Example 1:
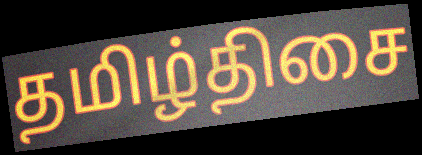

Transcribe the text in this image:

தமிழ்திசை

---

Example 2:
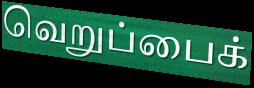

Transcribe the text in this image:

வெறுப்பைக்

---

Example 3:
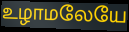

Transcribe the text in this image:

உழாமலேயே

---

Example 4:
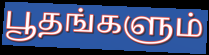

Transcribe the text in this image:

பூதங்களும்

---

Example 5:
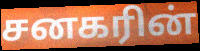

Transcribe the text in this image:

சனகரின்